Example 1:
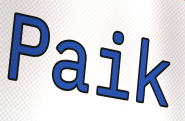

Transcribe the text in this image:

Paik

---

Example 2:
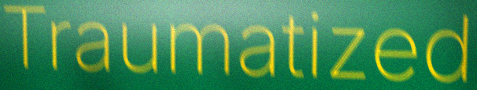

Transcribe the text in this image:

Traumatized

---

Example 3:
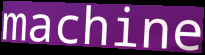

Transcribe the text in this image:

machine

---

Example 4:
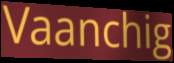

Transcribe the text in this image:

Vaanchig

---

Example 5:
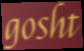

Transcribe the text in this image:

gosht